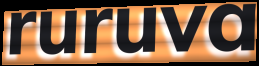
ruruva